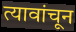
त्यावांचून